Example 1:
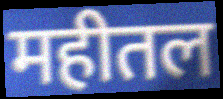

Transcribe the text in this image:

महीतल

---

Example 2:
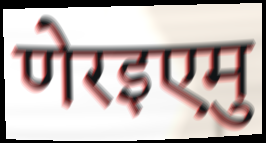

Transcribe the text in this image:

णेरइएमु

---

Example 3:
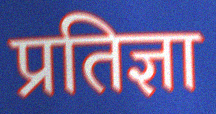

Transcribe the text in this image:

प्रतिज्ञा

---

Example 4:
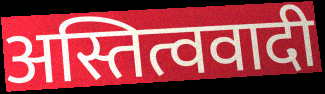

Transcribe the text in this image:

अस्तित्ववादी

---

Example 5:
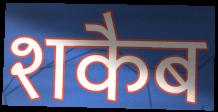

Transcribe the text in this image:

शकैब